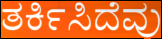
ತರ್ಕಿಸಿದೆವು